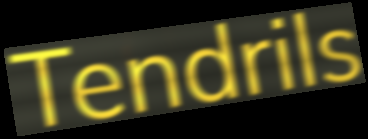
Tendrils